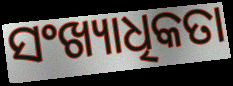
ସଂଖ୍ୟାଧିକତା